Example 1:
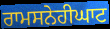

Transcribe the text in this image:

ਰਾਮਸਨੇਹੀਘਾਟ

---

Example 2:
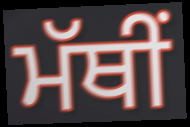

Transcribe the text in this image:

ਮੱਥੀਂ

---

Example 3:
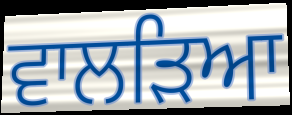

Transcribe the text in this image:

ਵਾਲੜਿਆ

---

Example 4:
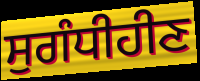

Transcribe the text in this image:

ਸੁਗੰਧੀਹੀਣ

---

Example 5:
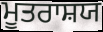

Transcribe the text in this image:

ਮੂਤਰਾਸ਼ਯ